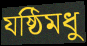
যষ্ঠিমধু